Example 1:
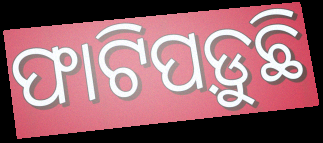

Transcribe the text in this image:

ଫାଟିପଡ଼ୁଛି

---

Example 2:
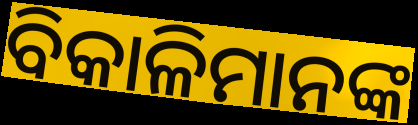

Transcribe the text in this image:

ବିକାଳିମାନଙ୍କ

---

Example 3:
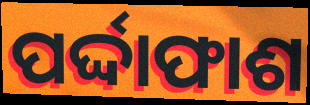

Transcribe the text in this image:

ପର୍ଦ୍ଦାଫାଶ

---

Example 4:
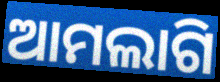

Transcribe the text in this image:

ଆମଲାଗି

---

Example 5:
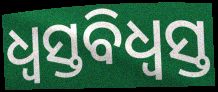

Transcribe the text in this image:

ଧ୍ୱସ୍ତବିଧ୍ୱସ୍ତ